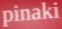
pinaki